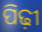
ପିଢ଼ୀ